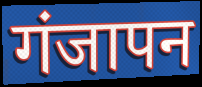
गंजापन